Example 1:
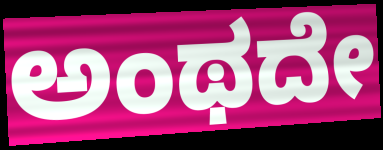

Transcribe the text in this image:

ಅಂಥದೇ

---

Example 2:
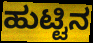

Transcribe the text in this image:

ಹುಟ್ಟಿನ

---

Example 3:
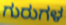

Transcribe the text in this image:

ಗುರುಗಳ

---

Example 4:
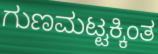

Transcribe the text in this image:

ಗುಣಮಟ್ಟಕ್ಕಿಂತ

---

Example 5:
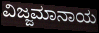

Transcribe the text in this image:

ವಿಜ್ಜಮಾನಾಯ